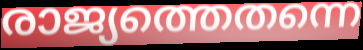
രാജ്യത്തെതന്നെ